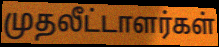
முதலீட்டாளர்கள்